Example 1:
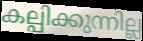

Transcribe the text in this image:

കല്പിക്കുന്നില്ല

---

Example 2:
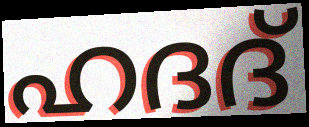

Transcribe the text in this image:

ഹദദ്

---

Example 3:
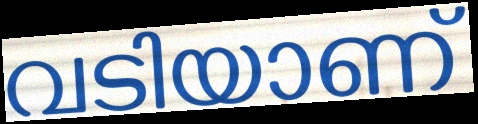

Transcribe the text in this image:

വടിയാണ്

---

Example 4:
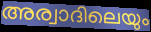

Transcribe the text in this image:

അര്വാദിലെയും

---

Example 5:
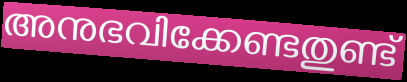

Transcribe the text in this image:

അനുഭവിക്കേണ്ടതുണ്ട്